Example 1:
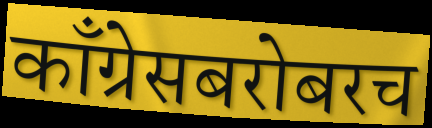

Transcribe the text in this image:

काँग्रेसबरोबरच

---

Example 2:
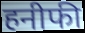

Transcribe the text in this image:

हनीफी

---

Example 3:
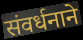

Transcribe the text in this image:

संवर्धनाने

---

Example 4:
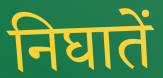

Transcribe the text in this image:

निघातें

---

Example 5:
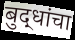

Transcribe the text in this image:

बुद्धांचा